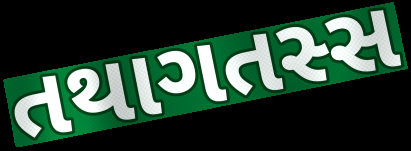
તથાગતસ્સ